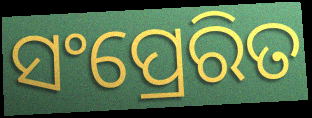
ସଂପ୍ରେରିତ